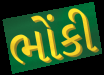
ભોંકી